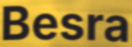
Besra